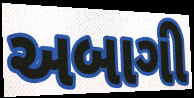
અબાગી